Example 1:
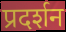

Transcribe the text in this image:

प्रदर्शन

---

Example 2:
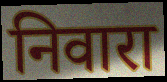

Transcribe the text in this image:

निवारा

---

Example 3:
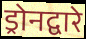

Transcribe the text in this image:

ड्रोनद्वारे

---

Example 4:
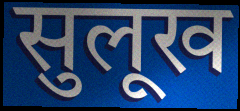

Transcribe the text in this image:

सुलूख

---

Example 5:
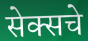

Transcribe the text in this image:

सेक्सचे